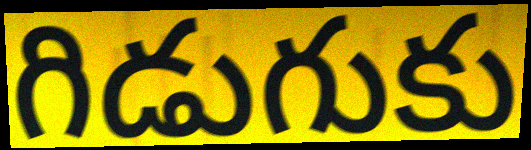
గిడుగుకు